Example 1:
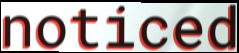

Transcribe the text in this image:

noticed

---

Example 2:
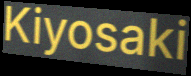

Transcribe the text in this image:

Kiyosaki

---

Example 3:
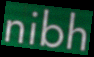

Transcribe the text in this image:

nibh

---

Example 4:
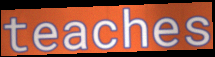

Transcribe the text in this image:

teaches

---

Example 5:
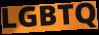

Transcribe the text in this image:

LGBTQ